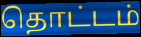
தொட்டம்